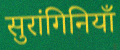
सुरांगिनियाँ